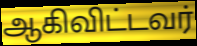
ஆகிவிட்டவர்